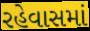
રહેવાસમાં